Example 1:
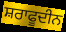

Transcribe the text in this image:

ਸ਼ਰਾਫੂਦੀਨ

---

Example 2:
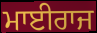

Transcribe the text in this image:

ਮਾਈਰਾਜ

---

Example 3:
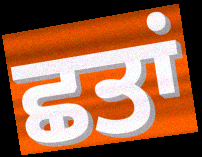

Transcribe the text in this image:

ਛਤਾਂ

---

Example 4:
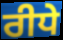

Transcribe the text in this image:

ਰੀਧੇ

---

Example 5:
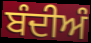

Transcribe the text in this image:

ਬੰਦੀਅੰ